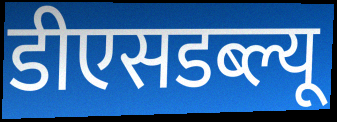
डीएसडब्ल्यू